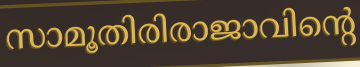
സാമൂതിരിരാജാവിന്റെ